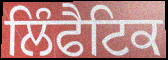
ਲਿੰਫੈਟਿਕ